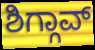
ಶಿಗ್ಗಾವ್